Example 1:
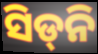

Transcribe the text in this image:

ସିଡ୍‍ନି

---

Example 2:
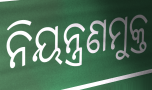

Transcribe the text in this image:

ନିୟନ୍ତ୍ରଣମୁକ୍ତ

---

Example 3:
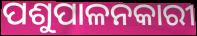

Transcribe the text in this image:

ପଶୁପାଳନକାରୀ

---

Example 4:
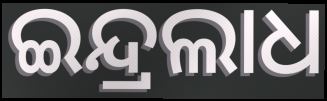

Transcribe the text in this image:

ଇନ୍ଦ୍ରଲାଧ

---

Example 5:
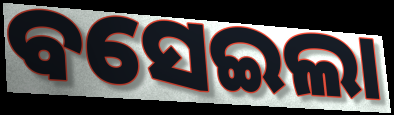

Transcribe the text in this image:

ବସେଇଲା